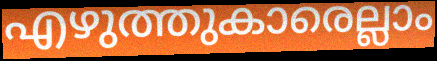
എഴുത്തുകാരെല്ലാം